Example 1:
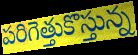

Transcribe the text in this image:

పరిగెత్తుకొస్తున్న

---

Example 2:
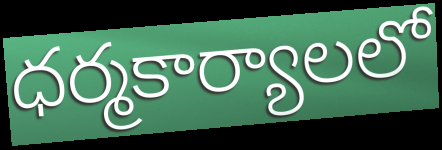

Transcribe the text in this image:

ధర్మకార్యాలలో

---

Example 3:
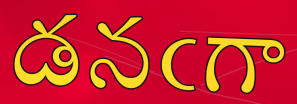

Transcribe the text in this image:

డనఁగా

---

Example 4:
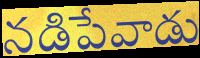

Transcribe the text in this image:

నడిపేవాడు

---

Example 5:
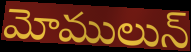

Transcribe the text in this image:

మోములున్